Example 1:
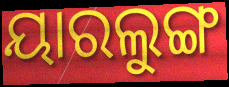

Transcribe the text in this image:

ୟାରଲୁଙ୍ଗ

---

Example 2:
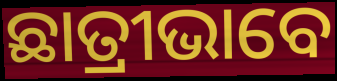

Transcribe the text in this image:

ଛାତ୍ରୀଭାବେ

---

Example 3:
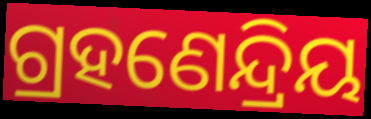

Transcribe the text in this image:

ଗ୍ରହଣେନ୍ଦ୍ରିୟ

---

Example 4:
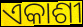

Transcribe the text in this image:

ଏକାଶୀ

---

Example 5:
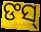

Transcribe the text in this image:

ଙସ୍